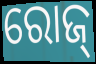
ରୋଜ୍